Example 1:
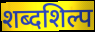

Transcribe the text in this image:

शब्दशिल्प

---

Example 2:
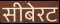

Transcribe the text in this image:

सीबेरट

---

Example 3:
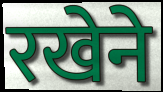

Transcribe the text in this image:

रखेने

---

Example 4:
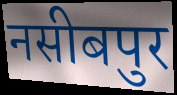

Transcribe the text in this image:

नसीबपुर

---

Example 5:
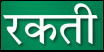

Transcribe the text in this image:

रकती